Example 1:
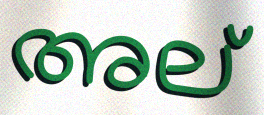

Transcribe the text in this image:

അല്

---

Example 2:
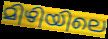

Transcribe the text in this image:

മിഴിയിലെ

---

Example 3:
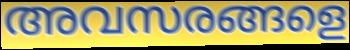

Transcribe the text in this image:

അവസരങ്ങളെ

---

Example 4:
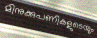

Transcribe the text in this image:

മിനുക്കുപണികളുടെയും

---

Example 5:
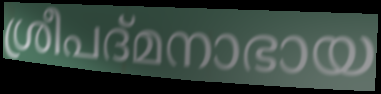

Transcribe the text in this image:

ശ്രീപദ്മനാഭായ